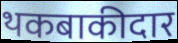
थकबाकीदार